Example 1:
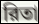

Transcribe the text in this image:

রিতা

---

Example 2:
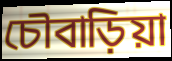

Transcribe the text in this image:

চৌবাড়িয়া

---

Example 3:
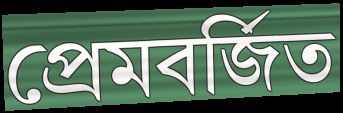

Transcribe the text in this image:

প্রেমবর্জিত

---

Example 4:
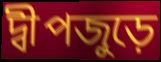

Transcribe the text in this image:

দ্বীপজুড়ে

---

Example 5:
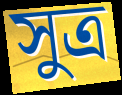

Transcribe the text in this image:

সুত্র